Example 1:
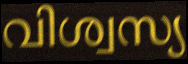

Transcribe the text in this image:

വിശ്വസ്യ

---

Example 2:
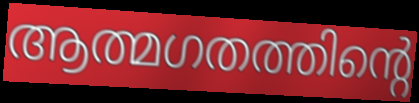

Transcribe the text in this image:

ആത്മഗതത്തിന്റെ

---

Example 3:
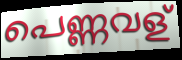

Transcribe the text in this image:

പെണ്ണവള്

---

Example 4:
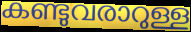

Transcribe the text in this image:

കണ്ടുവരാറുള്ള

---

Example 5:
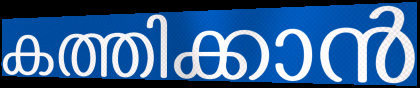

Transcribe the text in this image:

കത്തിക്കാൻ